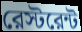
রেস্টরেন্ট